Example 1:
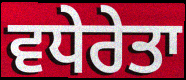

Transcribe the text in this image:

ਵਧੇਰੇਤਾ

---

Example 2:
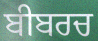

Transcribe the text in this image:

ਬੀਬਰਚ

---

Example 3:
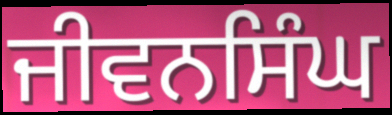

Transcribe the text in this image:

ਜੀਵਨਸਿੰਘ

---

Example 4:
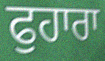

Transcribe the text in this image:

ਫੁਹਾਰਾ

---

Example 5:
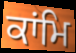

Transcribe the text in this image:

ਕਾਂਮਿ